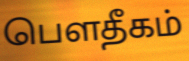
பௌதீகம்